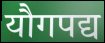
यौगपद्य